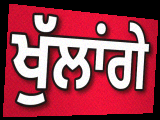
ਖੁੱਲਾਂਗੇ